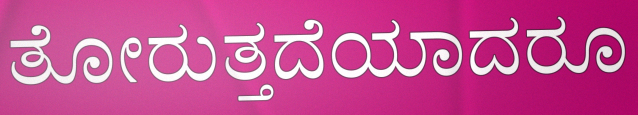
ತೋರುತ್ತದೆಯಾದರೂ